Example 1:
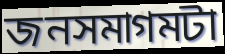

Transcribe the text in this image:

জনসমাগমটা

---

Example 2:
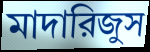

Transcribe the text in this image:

মাদারিজুস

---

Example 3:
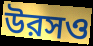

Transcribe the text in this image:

উরসও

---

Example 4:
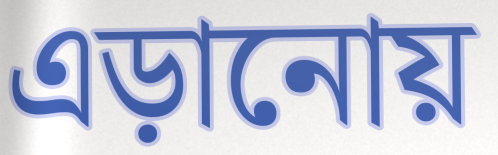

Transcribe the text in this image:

এড়ানোয়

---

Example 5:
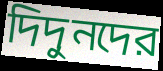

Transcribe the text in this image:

দিদুনদের